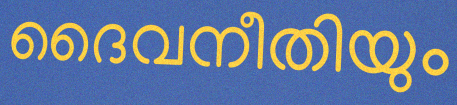
ദൈവനീതിയും